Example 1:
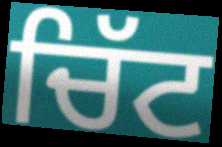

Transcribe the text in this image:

ਚਿੱਟ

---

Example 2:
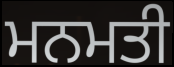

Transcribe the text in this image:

ਮਨਮਤੀ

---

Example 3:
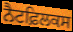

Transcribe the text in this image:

ਨੈਟਫ਼ਿਲਕਸ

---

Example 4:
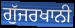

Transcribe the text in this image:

ਗੁੱਜਰਖਾਨੀ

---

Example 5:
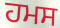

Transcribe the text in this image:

ਹਮਸ